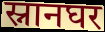
स्नानघर